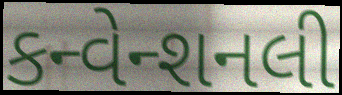
કન્વેન્શનલી